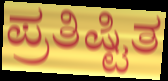
ಪ್ರತಿಷ್ಟಿತ